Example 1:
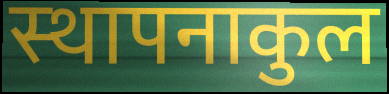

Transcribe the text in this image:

स्थापनाकुल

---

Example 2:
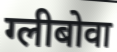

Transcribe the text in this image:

ग्लीबोवा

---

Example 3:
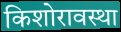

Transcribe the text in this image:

किशोरावस्था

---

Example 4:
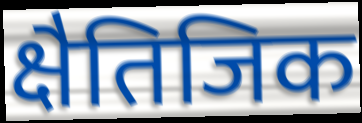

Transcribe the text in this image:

क्षैतिजिक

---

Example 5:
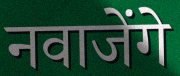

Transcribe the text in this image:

नवाजेंगे